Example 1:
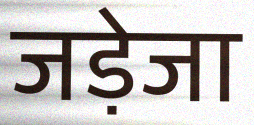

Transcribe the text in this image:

जड़ेजा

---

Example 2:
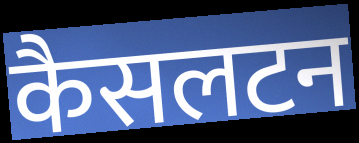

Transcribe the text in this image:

कैसलटन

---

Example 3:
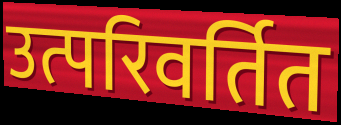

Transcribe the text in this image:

उत्परिवर्तित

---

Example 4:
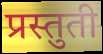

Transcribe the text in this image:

प्रस्तुती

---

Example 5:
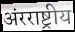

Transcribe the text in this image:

अंरराष्ट्रीय